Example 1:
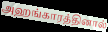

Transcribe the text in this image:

அஹங்காரத்தினால்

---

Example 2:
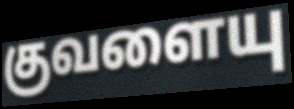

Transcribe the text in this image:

குவளையு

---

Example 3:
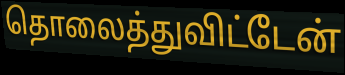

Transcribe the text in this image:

தொலைத்துவிட்டேன்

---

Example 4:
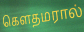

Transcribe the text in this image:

கௌதமரால்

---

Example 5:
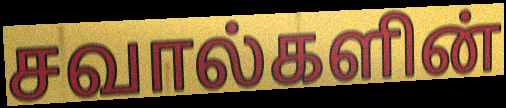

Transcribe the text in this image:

சவால்களின்